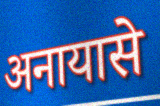
अनायासे